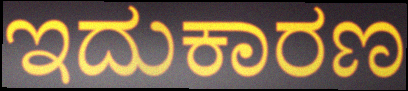
ಇದುಕಾರಣ